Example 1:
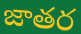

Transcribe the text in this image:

జాతర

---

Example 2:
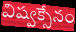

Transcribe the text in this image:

విష్వక్సేనం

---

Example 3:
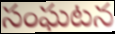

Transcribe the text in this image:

సంఘటన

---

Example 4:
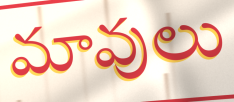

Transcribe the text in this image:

మావులు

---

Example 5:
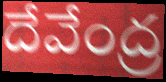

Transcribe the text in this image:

దేవేంద్ర